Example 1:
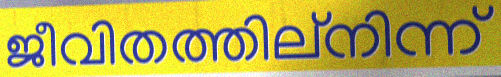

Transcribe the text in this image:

ജീവിതത്തില്നിന്ന്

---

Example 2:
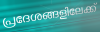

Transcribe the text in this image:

പ്രദേശങ്ങളിലേക്ക്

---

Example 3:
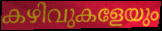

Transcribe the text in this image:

കഴിവുകളേയും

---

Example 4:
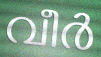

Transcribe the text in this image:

വീർ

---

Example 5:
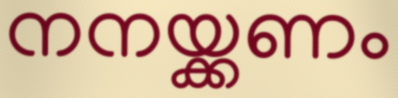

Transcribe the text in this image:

നനയ്ക്കണം